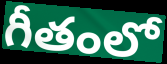
గీతంలో